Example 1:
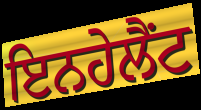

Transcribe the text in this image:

ਇਨਹੇਲੈਂਟ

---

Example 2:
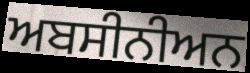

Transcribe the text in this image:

ਅਬਸੀਨੀਅਨ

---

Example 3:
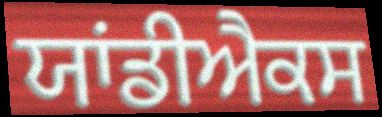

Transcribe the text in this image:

ਯਾਂਡੀਐਕਸ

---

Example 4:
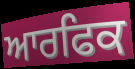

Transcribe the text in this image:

ਆਰਫਿਕ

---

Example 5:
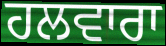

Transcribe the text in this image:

ਹਲਵਾਰਾ